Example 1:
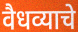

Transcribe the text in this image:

वैधव्याचे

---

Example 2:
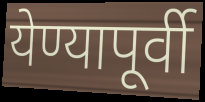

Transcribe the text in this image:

येण्यापूर्वी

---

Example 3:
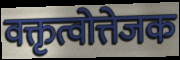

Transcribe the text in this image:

वक्तृत्वोत्तेजक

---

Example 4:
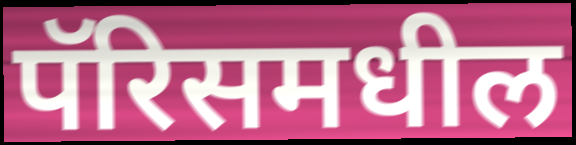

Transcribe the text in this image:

पॅरिसमधील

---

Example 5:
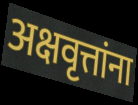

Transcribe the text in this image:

अक्षवृत्तांना